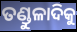
ତଣ୍ଡୁଳାଦିକୁ